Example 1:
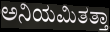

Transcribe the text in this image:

ಅನಿಯಮಿತತ್ತಾ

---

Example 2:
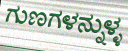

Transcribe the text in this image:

ಗುಣಗಳನ್ನುಳ್ಳ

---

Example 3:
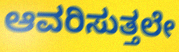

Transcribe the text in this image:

ಆವರಿಸುತ್ತಲೇ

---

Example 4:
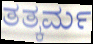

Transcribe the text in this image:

ತತ್ಕರ್ಮ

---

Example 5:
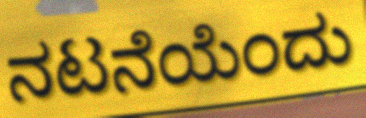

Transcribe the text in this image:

ನಟನೆಯೆಂದು